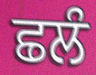
ਛਲੰ